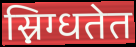
स्निग्धतेत